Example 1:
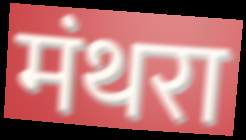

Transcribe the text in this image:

मंथरा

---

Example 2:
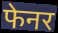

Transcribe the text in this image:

फेनर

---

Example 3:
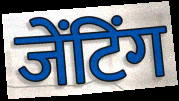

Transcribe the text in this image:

जेंटिंग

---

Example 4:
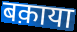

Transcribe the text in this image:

बक़ाया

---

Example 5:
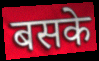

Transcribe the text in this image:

बसके